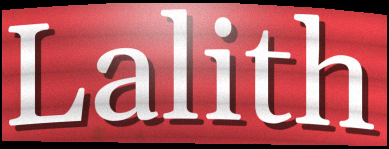
Lalith